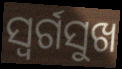
ସ୍ୱର୍ଗସୁଖ